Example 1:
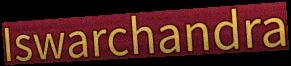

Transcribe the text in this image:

Iswarchandra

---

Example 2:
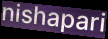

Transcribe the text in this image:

nishapari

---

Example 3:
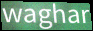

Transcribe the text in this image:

waghar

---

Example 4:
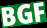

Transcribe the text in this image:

BGF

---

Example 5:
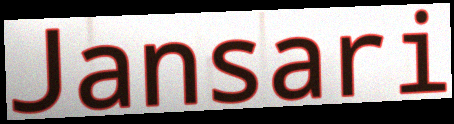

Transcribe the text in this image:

Jansari